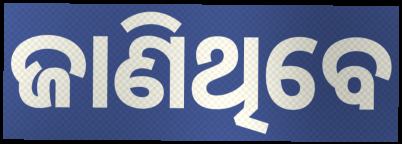
ଜାଣିଥିବେ